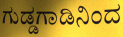
ಗುಡ್ಡಗಾಡಿನಿಂದ